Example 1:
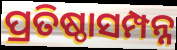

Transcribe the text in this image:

ପ୍ରତିଷ୍ଠାସମ୍ପନ୍ନ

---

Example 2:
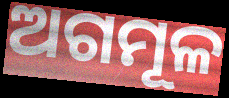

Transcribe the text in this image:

ଅଗମୂଳ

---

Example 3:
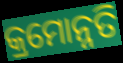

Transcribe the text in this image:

କ୍ରମୋନ୍ନତି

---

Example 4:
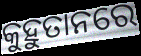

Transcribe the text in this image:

କୁହୁତାନରେ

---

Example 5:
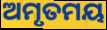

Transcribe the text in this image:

ଅମୃତମୟ